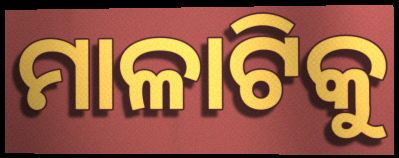
ମାଳାଟିକୁ